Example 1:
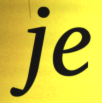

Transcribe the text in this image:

je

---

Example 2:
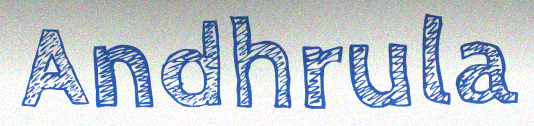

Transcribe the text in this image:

Andhrula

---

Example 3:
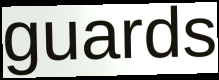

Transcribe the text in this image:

guards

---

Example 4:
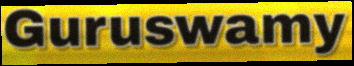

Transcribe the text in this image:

Guruswamy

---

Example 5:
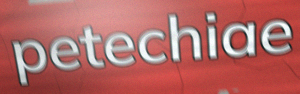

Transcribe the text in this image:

petechiae